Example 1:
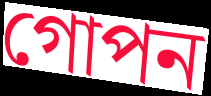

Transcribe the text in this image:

গোপন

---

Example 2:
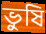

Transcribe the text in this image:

ভুষি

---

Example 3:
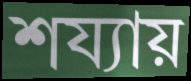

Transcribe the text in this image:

শয্যায়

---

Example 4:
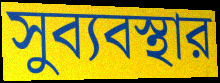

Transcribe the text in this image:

সুব্যবস্থার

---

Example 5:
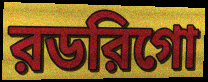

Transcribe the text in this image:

রডরিগো